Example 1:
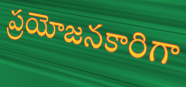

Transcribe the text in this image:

ప్రయోజనకారిగా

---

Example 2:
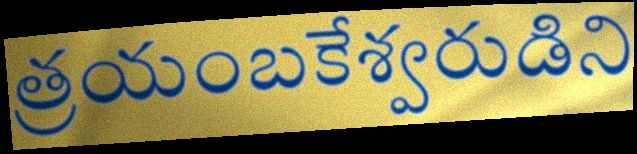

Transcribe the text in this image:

త్రయంబకేశ్వరుడిని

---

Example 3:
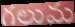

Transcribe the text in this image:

గలుమ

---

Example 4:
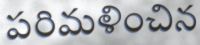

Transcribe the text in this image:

పరిమళించిన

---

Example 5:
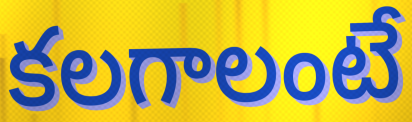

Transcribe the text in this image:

కలగాలంటే